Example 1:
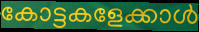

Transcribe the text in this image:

കോട്ടകളേക്കാൾ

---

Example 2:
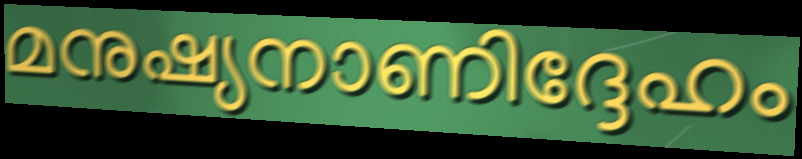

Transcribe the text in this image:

മനുഷ്യനാണിദ്ദേഹം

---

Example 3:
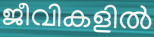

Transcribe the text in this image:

ജീവികളിൽ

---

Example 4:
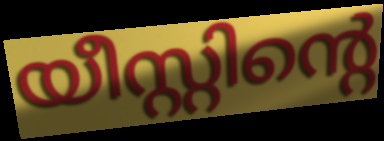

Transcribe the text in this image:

യീസ്റ്റിന്റെ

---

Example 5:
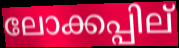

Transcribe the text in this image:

ലോക്കപ്പില്